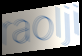
raolji